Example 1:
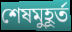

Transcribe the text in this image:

শেষমুহূর্ত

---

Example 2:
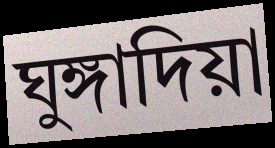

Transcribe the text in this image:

ঘুঙ্গাদিয়া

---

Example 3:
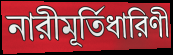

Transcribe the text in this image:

নারীমূর্তিধারিণী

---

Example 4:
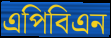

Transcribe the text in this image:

এপিবিএন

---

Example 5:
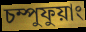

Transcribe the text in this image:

চম্পুফুয়াং